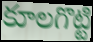
కూలగొట్టి